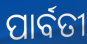
ପାର୍ବତୀ